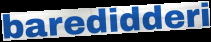
baredidderi